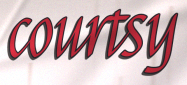
courtsy